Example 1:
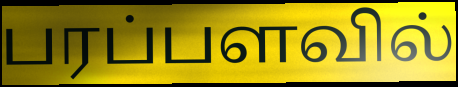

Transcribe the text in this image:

பரப்பளவில்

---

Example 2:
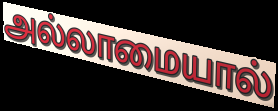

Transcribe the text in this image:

அல்லாமையால்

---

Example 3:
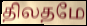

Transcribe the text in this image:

திலதமே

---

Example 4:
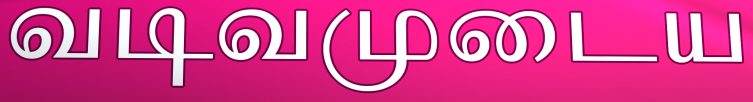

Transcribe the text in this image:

வடிவமுடைய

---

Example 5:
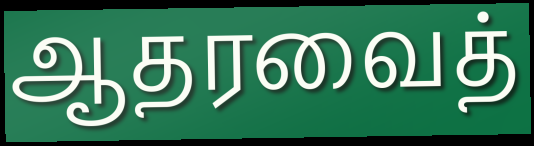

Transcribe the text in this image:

ஆதரவைத்